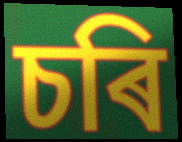
চৰি